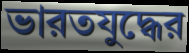
ভারতযুদ্ধের